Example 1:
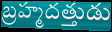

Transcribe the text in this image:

బ్రహ్మదత్తుడు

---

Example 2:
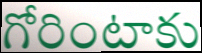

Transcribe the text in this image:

గోరింటాకు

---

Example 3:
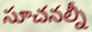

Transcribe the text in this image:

సూచనల్నీ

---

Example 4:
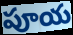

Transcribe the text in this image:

పూయ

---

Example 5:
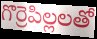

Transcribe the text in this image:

గొర్రెపిల్లలతో